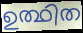
ഉത്ഥിത